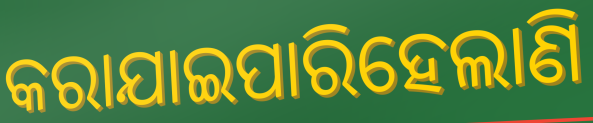
କରାଯାଇପାରିହେଲାଣି